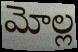
మోల్ల